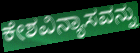
ಕೇಶವಿನ್ಯಾಸವನ್ನು